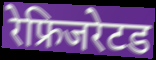
रेफ्रिजरेटड